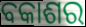
ବକାଶର